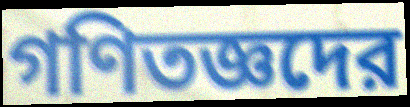
গণিতজ্ঞদের